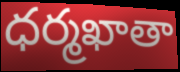
ధర్మఖాతా